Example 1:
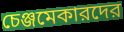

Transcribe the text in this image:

চেঞ্জমেকারদের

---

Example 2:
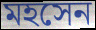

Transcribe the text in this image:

মহসেন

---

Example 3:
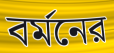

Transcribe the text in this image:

বর্মনের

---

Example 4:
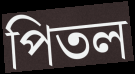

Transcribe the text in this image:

পিতল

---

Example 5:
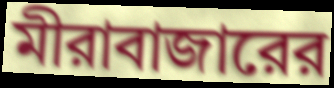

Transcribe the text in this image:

মীরাবাজারের